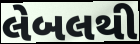
લેબલથી